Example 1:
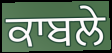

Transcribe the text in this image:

ਕਾਬਲੇ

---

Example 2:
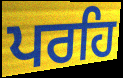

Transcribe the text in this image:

ਪਰਹਿ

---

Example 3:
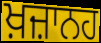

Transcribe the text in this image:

ਖ਼ਜ਼ਾਨਹ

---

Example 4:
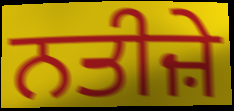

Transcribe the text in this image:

ਨਤੀਜ਼ੇ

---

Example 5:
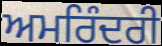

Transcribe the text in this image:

ਅਮਰਿੰਦਰੀ